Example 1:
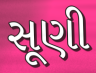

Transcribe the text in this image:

સૂણી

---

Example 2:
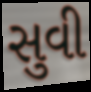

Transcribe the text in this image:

સુવી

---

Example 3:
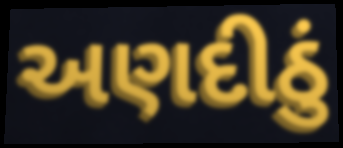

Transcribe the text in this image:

અણદીઠું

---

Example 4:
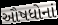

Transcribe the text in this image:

ઔષધોનાં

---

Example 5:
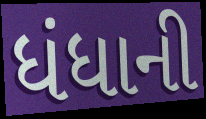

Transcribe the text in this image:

ધંધાની